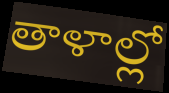
తాళాల్లో